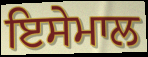
ਇਸੇਮਾਲ